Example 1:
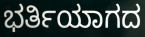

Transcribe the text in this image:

ಭರ್ತಿಯಾಗದ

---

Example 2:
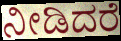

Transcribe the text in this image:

ನೀಡಿದರೆ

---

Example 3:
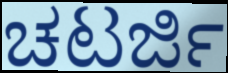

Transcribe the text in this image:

ಚಟರ್ಜಿ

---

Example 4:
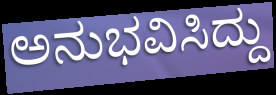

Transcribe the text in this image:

ಅನುಭವಿಸಿದ್ದು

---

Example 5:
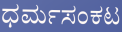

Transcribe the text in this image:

ಧರ್ಮಸಂಕಟ